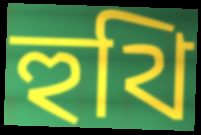
হুথি